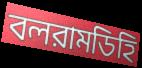
বলরামডিহি